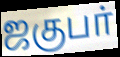
ஜகுபர்